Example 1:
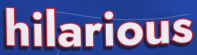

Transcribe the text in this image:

hilarious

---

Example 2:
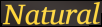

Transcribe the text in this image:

Natural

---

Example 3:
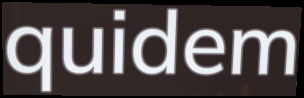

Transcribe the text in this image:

quidem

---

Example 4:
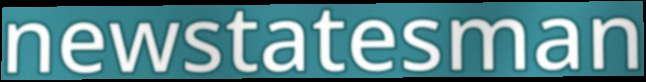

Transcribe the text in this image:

newstatesman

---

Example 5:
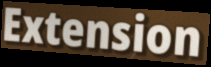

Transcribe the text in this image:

Extension